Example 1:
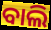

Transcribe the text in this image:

ବାଲି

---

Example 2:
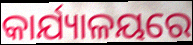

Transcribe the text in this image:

କାର୍ଯ୍ୟାଳୟରେ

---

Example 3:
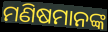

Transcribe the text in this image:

ମଣିଷମାନଙ୍କ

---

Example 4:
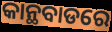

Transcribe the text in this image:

କାନ୍ଥବାଡରେ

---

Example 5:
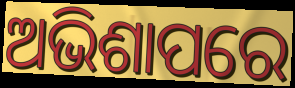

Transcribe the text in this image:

ଅଭିଶାପରେ